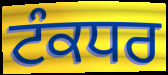
ਟੰਕਧਰ